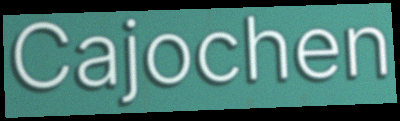
Cajochen